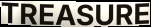
TREASURE